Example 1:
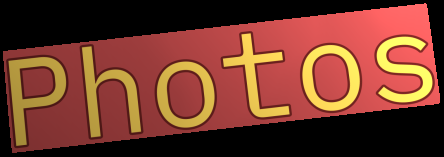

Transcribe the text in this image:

Photos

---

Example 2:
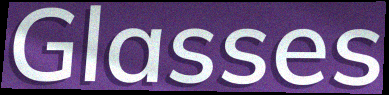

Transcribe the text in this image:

Glasses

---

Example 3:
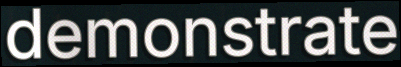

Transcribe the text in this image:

demonstrate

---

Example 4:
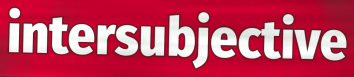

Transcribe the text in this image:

intersubjective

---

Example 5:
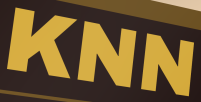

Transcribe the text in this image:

KNN